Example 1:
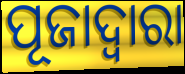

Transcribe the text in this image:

ପୂଜାଦ୍ୱାରା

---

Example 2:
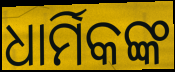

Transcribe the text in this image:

ଧାର୍ମିକଙ୍କ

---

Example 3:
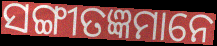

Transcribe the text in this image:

ସଙ୍ଗୀତଜ୍ଞମାନେ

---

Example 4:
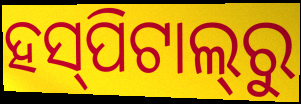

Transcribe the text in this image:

ହସ୍‌ପିଟାଲ୍‌ରୁ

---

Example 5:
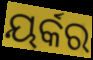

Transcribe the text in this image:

ୟର୍କର